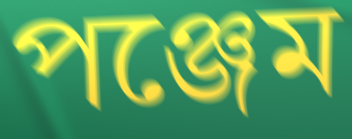
পঞ্জেম